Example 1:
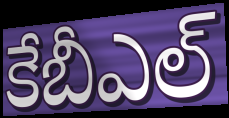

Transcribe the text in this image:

కేబీఎల్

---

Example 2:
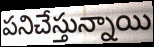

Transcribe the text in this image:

పనిచేస్తున్నాయి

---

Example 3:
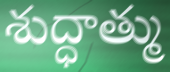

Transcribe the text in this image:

శుద్ధాత్ము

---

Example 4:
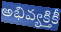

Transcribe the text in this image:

అభివ్యక్తికీ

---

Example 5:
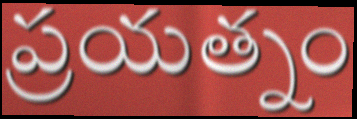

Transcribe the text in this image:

ప్రయత్నం